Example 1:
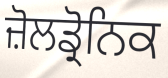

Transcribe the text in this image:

ਜ਼ੋਲਡ੍ਰੋਨਿਕ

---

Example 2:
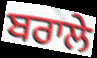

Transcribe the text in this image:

ਬਰਾਲੇ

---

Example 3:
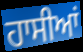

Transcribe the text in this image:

ਹਾਸੀਆਂ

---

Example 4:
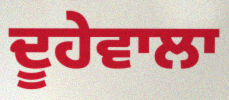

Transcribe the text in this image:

ਦੂਹੇਵਾਲਾ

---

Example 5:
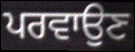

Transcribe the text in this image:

ਪਰਵਾਉਣ